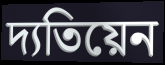
দ্যতিয়েন